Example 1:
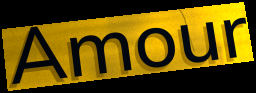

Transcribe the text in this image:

Amour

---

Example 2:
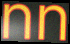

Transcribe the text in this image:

nn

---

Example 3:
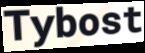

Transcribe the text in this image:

Tybost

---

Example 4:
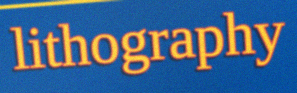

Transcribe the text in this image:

lithography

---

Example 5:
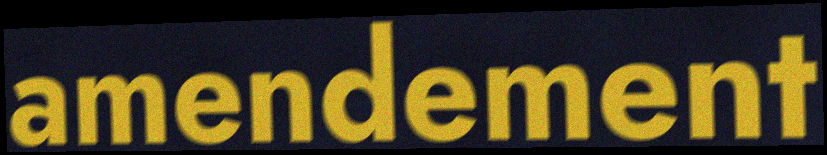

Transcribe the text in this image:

amendement